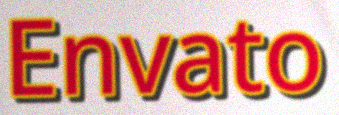
Envato